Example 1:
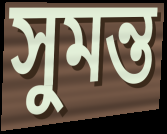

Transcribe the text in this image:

সুমন্ত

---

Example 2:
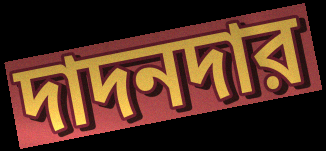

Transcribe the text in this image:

দাদনদার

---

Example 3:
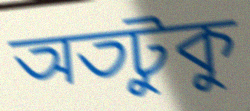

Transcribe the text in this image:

অতটুকু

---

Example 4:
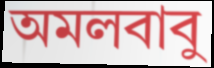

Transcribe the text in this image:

অমলবাবু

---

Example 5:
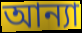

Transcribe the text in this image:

আন্যা